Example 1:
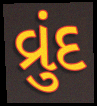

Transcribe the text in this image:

વ્રુંદ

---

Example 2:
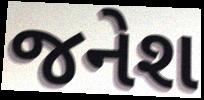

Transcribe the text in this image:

જનેશ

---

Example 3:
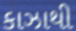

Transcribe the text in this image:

કાઝાથી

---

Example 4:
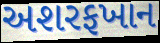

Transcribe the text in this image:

અશરફખાન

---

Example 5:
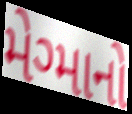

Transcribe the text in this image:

મેગ્માનો